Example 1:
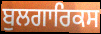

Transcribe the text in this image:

ਬੁਲਗਾਰਿਕਸ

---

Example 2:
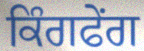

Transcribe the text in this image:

ਕਿੰਗਫੇਂਗ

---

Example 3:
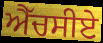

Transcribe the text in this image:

ਐੱਚਸੀਏ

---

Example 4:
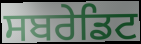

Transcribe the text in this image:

ਸਬਰੇਡਿਟ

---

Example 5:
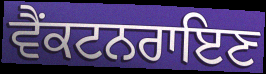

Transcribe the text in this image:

ਵੈਂਕਟਨਰਾਇਣ